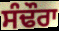
ਸੰਢੌਰਾ